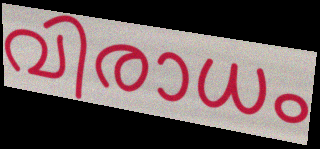
വിരാധം